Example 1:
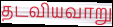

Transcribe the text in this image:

தடவியவாறு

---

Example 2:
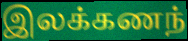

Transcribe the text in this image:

இலக்கணந்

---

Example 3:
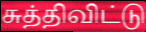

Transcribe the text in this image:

சுத்திவிட்டு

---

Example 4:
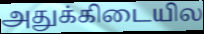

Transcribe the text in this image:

அதுக்கிடையில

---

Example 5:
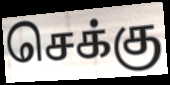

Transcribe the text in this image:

செக்கு